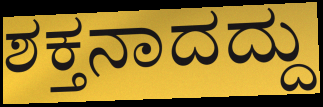
ಶಕ್ತನಾದದ್ದು